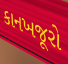
કાનખજૂરો